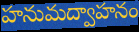
హనుమద్వాహనం